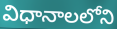
విధానాలలోని